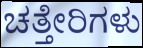
ಚತ್ತೇರಿಗಳು